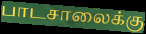
பாடசாலைக்கு